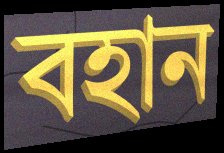
বহান